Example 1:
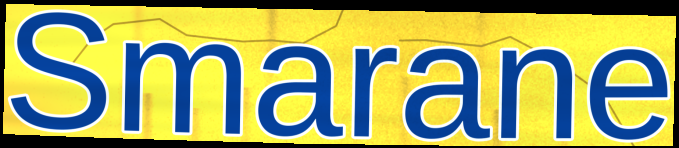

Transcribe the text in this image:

Smarane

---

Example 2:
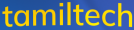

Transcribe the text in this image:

tamiltech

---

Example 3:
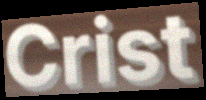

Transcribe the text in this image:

Crist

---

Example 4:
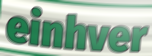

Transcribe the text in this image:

einhver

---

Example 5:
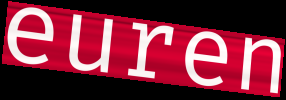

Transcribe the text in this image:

euren